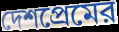
দেশপ্রেমের